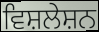
ਵਿਸ਼ਲੇਸ਼ਨ